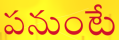
పనుంటే